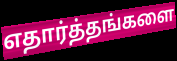
எதார்த்தங்களை